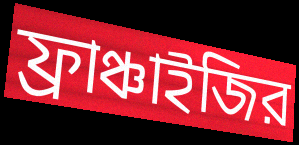
ফ্রাঞ্চাইজির